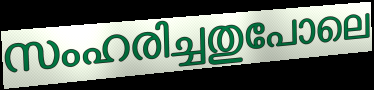
സംഹരിച്ചതുപോലെ